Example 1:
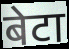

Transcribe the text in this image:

बेटा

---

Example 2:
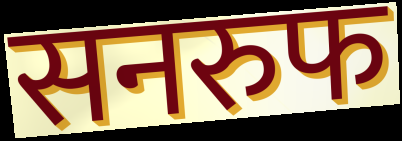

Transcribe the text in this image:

सनरुफ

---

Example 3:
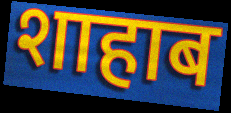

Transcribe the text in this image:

शाहाब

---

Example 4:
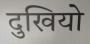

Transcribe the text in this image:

दुखियो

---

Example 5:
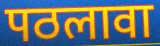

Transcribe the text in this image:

पठलावा